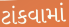
ટાંકવામાં